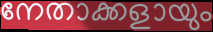
നേതാക്കളായും